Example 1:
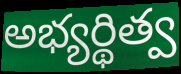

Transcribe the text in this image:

అభ్యర్థిత్వ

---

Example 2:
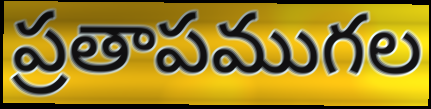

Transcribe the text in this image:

ప్రతాపముగల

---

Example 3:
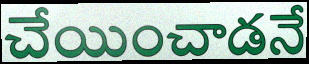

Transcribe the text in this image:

చేయించాడనే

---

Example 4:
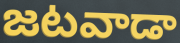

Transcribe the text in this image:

జటవాడా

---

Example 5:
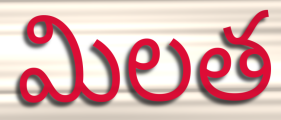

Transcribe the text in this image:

మిలత